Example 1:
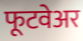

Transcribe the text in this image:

फूटवेअर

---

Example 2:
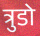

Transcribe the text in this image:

त्रुडो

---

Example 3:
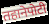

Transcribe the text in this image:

तहानेपोटी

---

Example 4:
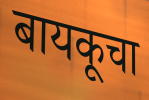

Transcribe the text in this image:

बायकूचा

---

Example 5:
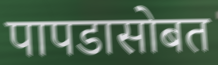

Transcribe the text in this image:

पापडासोबत